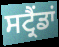
ਸਟ੍ਰੈਂਡਾਂ